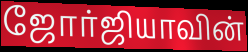
ஜோர்ஜியாவின்